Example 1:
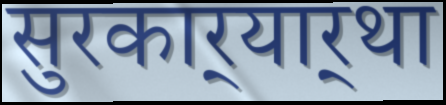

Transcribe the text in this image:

सुरकार्यार्था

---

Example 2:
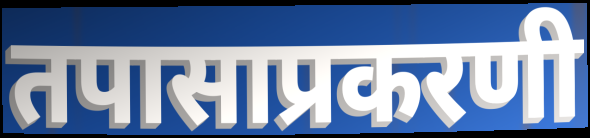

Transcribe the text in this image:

तपासाप्रकरणी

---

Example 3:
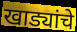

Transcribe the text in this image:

खाड्यांचे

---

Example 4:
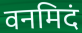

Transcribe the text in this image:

वनमिदं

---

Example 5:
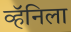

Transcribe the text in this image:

व्हॅनिला